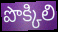
పొక్కిలి